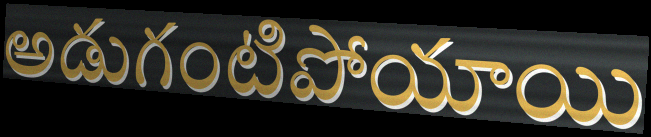
అడుగంటిపోయాయి